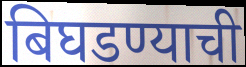
बिघडण्याची